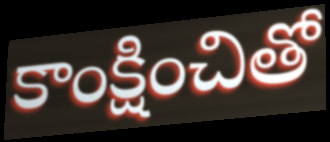
కాంక్షించితో